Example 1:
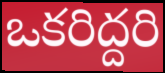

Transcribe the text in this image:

ఒకరిద్దరి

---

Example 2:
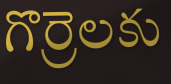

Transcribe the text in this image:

గొర్రెలకు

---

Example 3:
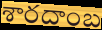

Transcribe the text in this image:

శారదాంబ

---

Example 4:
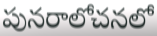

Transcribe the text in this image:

పునరాలోచనలో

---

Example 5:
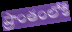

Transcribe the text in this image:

ప్రాంతంలోకి